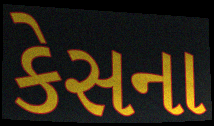
કેસના